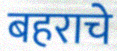
बहराचे